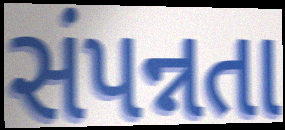
સંપન્નતા